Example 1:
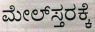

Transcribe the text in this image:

ಮೇಲ್‌ಸ್ತರಕ್ಕೆ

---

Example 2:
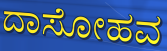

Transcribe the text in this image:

ದಾಸೋಹವ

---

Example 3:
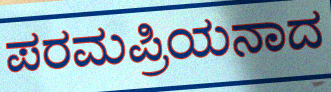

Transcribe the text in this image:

ಪರಮಪ್ರಿಯನಾದ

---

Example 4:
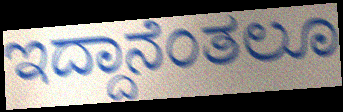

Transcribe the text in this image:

ಇದ್ದಾನೆಂತಲೂ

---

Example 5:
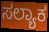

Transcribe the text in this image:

ಸಲ್ಯಾಕ